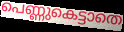
പെണ്ണുകെട്ടാതെ